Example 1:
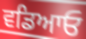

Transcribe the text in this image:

ਵਡਿਆਓ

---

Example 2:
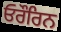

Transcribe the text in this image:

ਓਰੌਰਿਨ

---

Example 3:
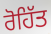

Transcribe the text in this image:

ਰੋਹਿੱਤ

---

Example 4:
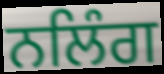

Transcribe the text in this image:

ਨਲਿੰਗ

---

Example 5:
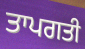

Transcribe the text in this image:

ਤਾਪਗਤੀ